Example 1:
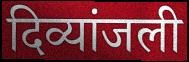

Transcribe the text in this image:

दिव्यांजली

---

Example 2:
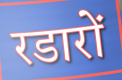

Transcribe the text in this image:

रडारों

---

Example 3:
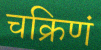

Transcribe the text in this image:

चक्रिणं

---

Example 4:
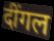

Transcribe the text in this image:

दींगल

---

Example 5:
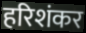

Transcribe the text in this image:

हरिशंकर